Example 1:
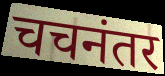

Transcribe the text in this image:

चचनंतर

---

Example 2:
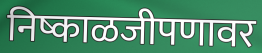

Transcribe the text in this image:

निष्काळजीपणावर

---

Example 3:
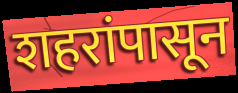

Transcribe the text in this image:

शहरांपासून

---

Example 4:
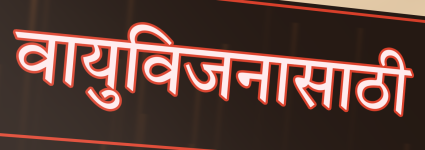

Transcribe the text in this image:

वायुविजनासाठी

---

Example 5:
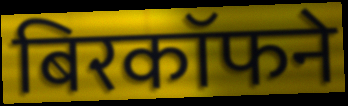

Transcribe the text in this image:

बिरकॉफने